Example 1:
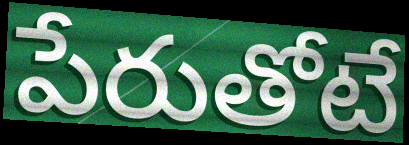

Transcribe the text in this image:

పేరుతోటే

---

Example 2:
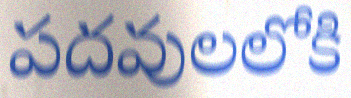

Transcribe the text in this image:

పదవులలోకి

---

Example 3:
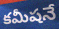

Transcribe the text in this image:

కమీషనే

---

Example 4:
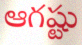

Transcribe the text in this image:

ఆగష్టు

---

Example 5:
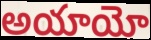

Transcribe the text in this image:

అయాయో